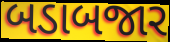
બડાબજાર